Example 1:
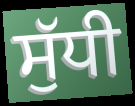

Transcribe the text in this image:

ਸੁੱਧੀ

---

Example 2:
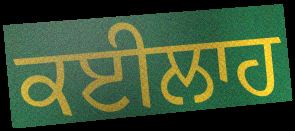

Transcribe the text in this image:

ਕਈਲਾਹ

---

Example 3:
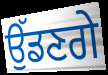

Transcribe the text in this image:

ਉੱਡਣਗੇ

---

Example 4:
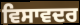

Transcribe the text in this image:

ਵਿਸਾਵਦਰ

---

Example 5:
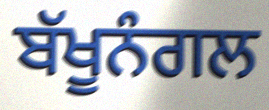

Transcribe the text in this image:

ਬੱਖੂਨੰਗਲ